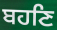
ਬਹਣਿ